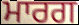
ਮਾਰਗ